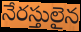
నేరస్తులైన